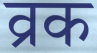
व्रक